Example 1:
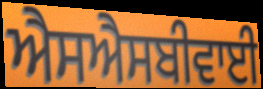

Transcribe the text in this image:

ਐਸਐਸਬੀਵਾਈ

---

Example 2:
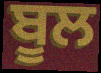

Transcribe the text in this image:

ਬੂਲ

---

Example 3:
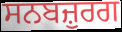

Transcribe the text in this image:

ਸਨਬਜ਼ੁਰਗ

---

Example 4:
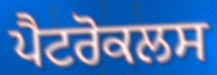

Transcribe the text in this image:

ਪੈਟਰੋਕਲਸ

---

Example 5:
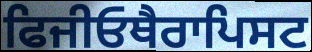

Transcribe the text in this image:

ਫਿਜੀਓਥੈਰਾਪਿਸਟ